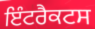
ਇੰਟਰੈਕਟਸ